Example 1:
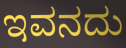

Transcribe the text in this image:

ಇವನದು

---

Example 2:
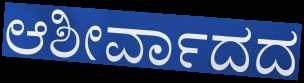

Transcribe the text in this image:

ಆಶೀರ್ವಾದದ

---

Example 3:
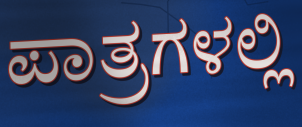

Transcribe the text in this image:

ಪಾತ್ರಗಳಲ್ಲಿ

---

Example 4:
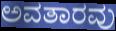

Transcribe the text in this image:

ಅವತಾರವು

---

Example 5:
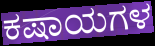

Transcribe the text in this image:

ಕಷಾಯಗಳ